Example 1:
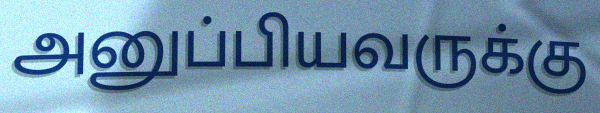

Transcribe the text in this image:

அனுப்பியவருக்கு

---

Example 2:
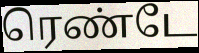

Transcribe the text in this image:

ரெண்டே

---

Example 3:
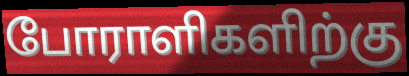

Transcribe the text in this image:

போராளிகளிற்கு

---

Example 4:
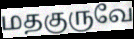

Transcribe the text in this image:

மதகுருவே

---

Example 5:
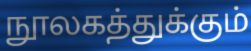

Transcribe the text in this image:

நூலகத்துக்கும்